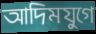
আদিমযুগে